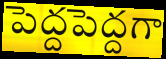
పెద్దపెద్దగా